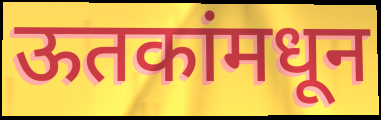
ऊतकांमधून